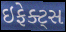
ઇફેક્ટ્સ